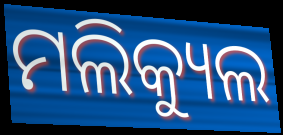
ମଲିକ୍ୟୁଲ